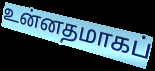
உன்னதமாகப்